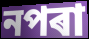
নপৰা